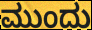
ಮುಂದು